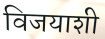
विजयाशी